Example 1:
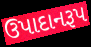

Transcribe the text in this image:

ઉપાદાનરૂપ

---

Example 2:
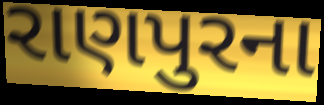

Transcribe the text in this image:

રાણપુરના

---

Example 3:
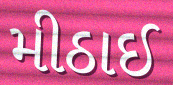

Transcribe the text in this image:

મીઠાઈ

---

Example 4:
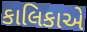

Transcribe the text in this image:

કાલિકાએ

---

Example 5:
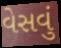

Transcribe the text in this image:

વેસવું